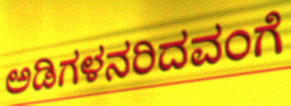
ಅಡಿಗಳನರಿದವಂಗೆ